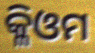
କ୍ଳିଓମ